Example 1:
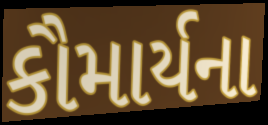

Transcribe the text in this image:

કૌમાર્યના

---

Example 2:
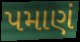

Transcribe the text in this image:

પમાણં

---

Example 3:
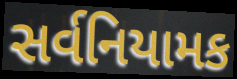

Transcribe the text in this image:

સર્વનિયામક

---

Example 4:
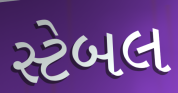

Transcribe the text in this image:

સ્ટેબલ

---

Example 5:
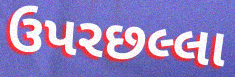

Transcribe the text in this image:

ઉપરછલ્લા